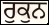
ਰੁਕੁਨ